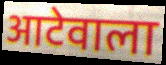
आटेवाला